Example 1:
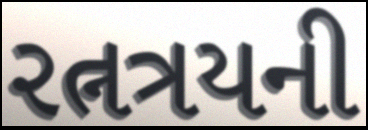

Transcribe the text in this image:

રત્નત્રયની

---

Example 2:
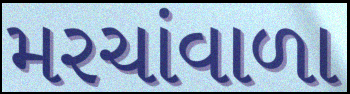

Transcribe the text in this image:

મરચાંવાળા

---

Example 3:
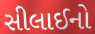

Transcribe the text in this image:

સીલાઈનો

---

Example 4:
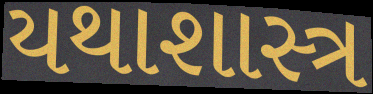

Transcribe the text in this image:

યથાશાસ્‍ત્ર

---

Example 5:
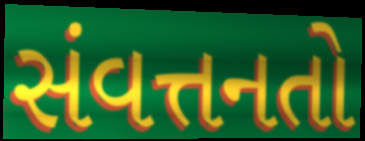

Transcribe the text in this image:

સંવત્તનતો